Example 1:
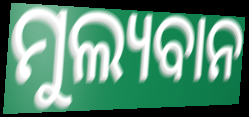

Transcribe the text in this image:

ମୁଲ୍ୟବାନ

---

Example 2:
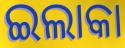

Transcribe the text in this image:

ଇଲାକା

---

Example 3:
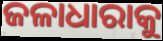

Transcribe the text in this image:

ଜଳାଧାରାକୁ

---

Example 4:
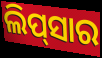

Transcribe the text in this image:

ଲିପ୍‌ସାର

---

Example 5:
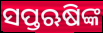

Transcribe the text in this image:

ସପ୍ତଋଷିଙ୍କ